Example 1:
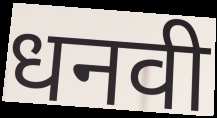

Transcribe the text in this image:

धनवी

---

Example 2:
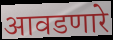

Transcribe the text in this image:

आवडणारे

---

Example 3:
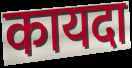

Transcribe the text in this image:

कायदा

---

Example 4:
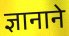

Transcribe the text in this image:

ज्ञानाने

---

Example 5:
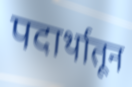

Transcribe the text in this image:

पदार्थातून